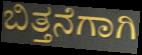
ಬಿತ್ತನೆಗಾಗಿ